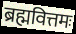
ब्रह्मवित्तमः